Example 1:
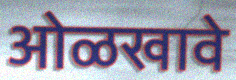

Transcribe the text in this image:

ओळखावे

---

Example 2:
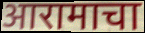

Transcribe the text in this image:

आरामाचा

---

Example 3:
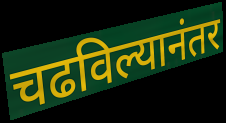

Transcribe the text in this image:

चढविल्यानंतर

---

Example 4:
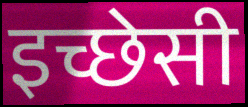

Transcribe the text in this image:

इच्छेसी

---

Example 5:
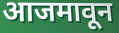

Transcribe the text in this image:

आजमावून